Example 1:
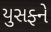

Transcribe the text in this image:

યુસફ્ને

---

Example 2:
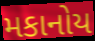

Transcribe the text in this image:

મકાનોય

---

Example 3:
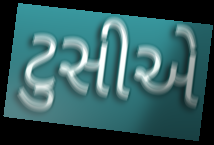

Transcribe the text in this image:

ટુસીએ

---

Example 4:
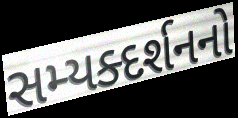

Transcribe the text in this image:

સમ્યક્દર્શનનો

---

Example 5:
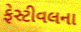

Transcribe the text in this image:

ફેસ્ટીવલના